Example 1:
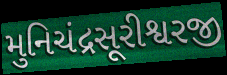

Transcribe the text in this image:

મુનિચંદ્રસૂરીશ્વરજી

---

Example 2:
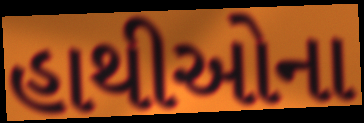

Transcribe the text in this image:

હાથીઓના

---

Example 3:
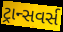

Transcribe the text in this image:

ટ્રાન્સવર્સ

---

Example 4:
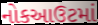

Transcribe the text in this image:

નોકઆઉટમાં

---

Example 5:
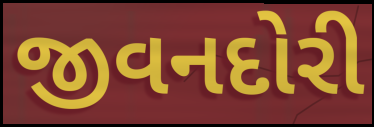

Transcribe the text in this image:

જીવનદોરી